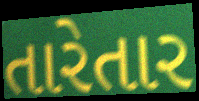
તારેતાર